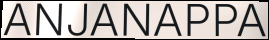
ANJANAPPA